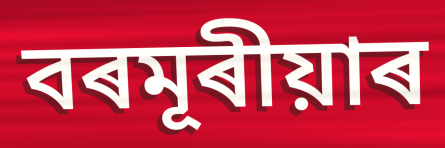
বৰমূৰীয়াৰ